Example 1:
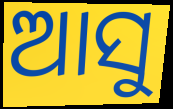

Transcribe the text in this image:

ଆସୁ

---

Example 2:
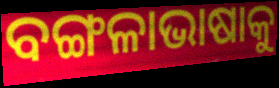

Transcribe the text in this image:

ବଙ୍ଗଳାଭାଷାକୁ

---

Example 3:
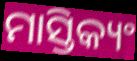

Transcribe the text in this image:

ମାସ୍ତିକ୍ୟଂ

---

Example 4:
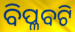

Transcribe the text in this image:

ବିପ୍ଳବଟି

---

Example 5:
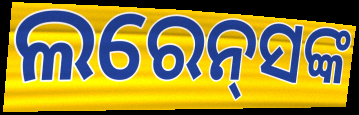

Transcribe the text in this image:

ଲରେନ୍‌ସଙ୍କ